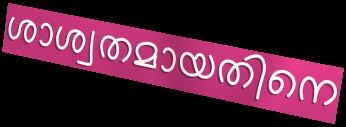
ശാശ്വതമായതിനെ